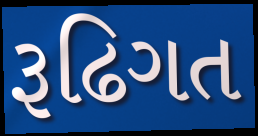
રૂઢિગત